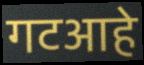
गटआहे